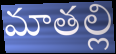
మాతల్లి